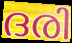
ദരി